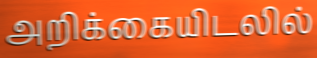
அறிக்கையிடலில்